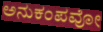
ಅನುಕಂಪವೋ